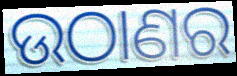
ଉଠାଣର